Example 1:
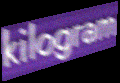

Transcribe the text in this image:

kilogram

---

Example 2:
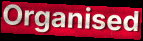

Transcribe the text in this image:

Organised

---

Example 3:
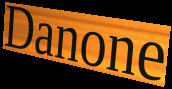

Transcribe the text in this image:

Danone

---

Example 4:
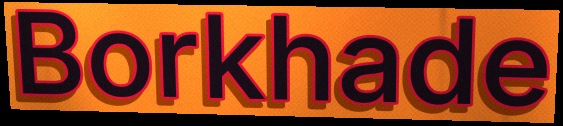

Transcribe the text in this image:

Borkhade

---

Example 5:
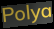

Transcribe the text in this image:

Polya